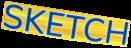
SKETCH